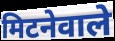
मिटनेवाले